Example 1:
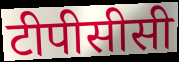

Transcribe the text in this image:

टीपीसीसी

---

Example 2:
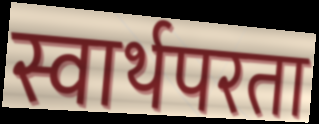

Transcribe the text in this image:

स्वार्थपरता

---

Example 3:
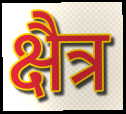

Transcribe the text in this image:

क्षैत्र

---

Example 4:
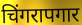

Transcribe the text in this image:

चिंगरापगार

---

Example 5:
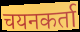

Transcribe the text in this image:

चयनकर्ता